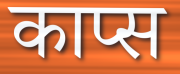
काप्स